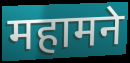
महामने